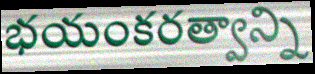
భయంకరత్వాన్ని